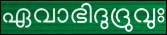
ഏവാഭിദുദ്രുവുഃ